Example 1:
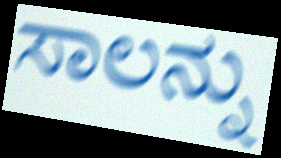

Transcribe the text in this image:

ಸಾಲನ್ನು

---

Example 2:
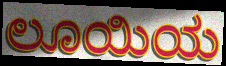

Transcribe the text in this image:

ಲೂಯಿಯ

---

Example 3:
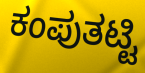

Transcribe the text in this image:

ಕಂಪುತಟ್ಟಿ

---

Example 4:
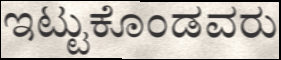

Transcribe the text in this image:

ಇಟ್ಟುಕೊಂಡವರು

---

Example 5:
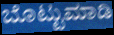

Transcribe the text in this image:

ಬೊಟ್ಟುಮಾಡಿ